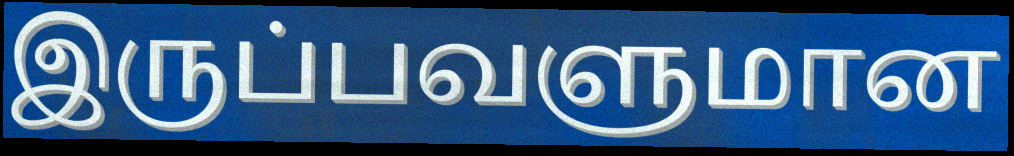
இருப்பவளுமான